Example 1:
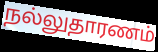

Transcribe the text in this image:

நல்லுதாரணம்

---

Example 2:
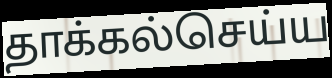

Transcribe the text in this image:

தாக்கல்செய்ய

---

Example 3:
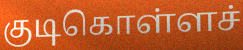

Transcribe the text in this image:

குடிகொள்ளச்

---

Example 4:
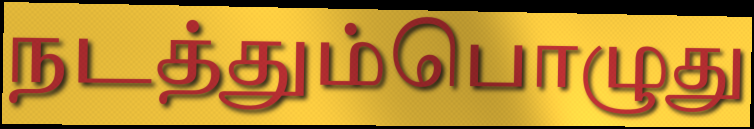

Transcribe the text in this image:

நடத்தும்பொழுது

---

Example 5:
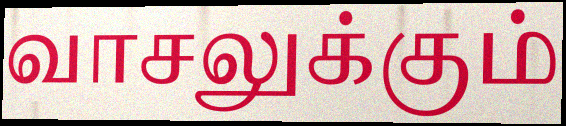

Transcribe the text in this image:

வாசலுக்கும்